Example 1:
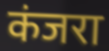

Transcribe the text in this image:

कंजरा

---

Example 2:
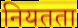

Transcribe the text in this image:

नियतता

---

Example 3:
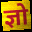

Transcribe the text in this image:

ज्ञो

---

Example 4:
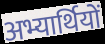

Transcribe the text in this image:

अभ्‍यार्थियों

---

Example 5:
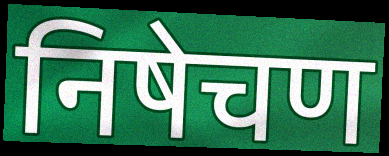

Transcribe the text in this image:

निषेचण